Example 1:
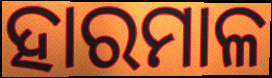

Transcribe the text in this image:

ହାରମାଳ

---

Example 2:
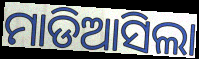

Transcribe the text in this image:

ମାଡିଆସିଲା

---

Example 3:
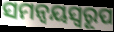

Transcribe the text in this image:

ସମନ୍ୱୟସ୍ୱରୂପ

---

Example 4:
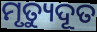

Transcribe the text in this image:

ମୃତ୍ୟୁଦୂତ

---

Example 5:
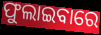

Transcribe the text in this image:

ଫୁଲାଇବାରେ